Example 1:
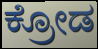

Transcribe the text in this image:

ಕ್ರೋಡ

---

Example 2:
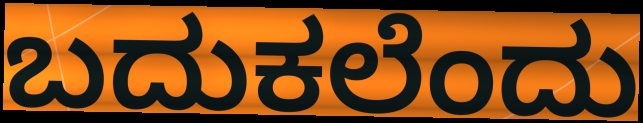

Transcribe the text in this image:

ಬದುಕಲೆಂದು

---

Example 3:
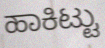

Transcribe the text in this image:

ಹಾಕಿಟ್ಟು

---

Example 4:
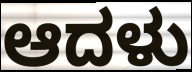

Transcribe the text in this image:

ಆದಳು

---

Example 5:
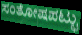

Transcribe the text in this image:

ಸಂತೋಷಪಟ್ಟು